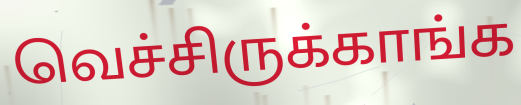
வெச்சிருக்காங்க